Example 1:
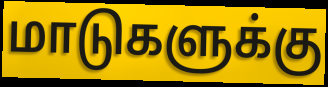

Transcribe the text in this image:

மாடுகளுக்கு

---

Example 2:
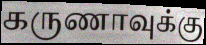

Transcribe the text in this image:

கருணாவுக்கு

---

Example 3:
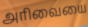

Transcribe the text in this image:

அரிவையை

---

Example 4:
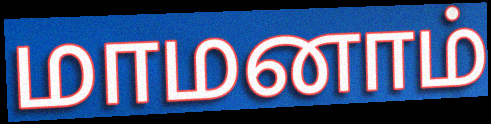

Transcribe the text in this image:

மாமனாம்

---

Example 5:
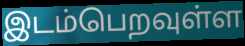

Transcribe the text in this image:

இடம்பெறவுள்ள